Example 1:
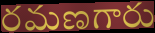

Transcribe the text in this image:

రమణగారు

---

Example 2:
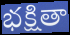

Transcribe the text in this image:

భక్షితా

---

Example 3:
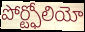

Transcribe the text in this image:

పోర్ట్ఫోలియో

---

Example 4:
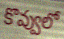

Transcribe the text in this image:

కొవ్వులో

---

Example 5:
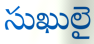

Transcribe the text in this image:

సుఖులై